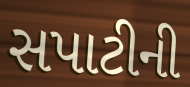
સપાટીની